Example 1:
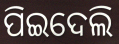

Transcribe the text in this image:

ପିଇଦେଲି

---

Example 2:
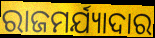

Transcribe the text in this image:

ରାଜମର୍ଯ୍ୟାଦାର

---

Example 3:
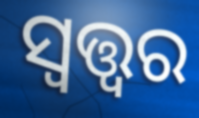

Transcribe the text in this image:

ସ୍ୱତ୍ତ୍ୱର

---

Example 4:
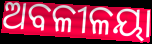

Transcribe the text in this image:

ଅବଳୀଳୟା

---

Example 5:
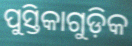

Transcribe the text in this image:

ପୁସ୍ତିକାଗୁଡ଼ିକ